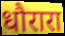
धौरारा